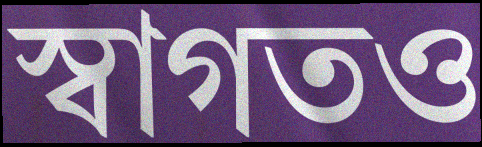
স্বাগতও